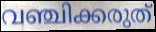
വഞ്ചിക്കരുത്